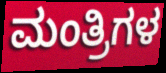
ಮಂತ್ರಿಗಳ